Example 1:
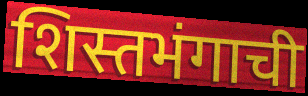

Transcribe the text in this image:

शिस्तभंगाची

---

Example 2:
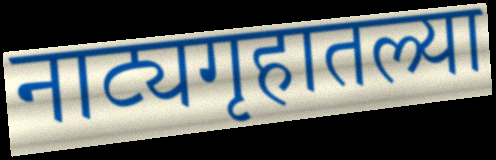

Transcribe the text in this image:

नाट्यगृहातल्या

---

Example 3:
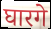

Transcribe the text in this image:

घारगे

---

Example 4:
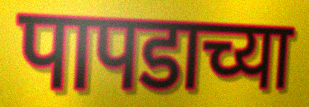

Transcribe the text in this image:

पापडाच्या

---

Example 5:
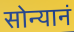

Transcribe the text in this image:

सोन्यानं